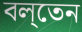
বল্‌তেন